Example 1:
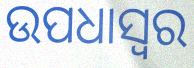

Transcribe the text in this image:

ଉପଧାସ୍ୱର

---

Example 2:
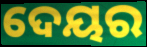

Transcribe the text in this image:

ଦେୟର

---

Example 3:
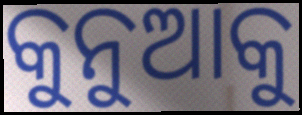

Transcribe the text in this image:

କୁନୁଆକୁ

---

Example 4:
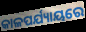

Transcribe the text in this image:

କାଳପର୍ଯ୍ୟାୟରେ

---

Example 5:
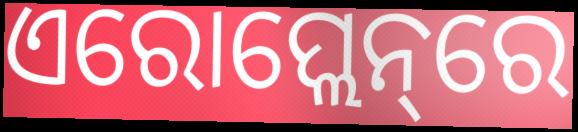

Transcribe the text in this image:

ଏରୋପ୍ଲେନ୍‌ରେ